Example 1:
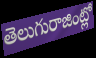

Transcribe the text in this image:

తెలుగురాజింట్లో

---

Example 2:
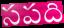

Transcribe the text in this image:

సపది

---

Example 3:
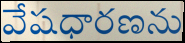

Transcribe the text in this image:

వేషధారణను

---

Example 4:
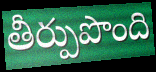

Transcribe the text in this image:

తీర్పుపొంది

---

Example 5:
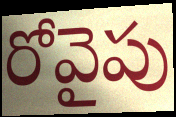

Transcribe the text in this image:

రోవైపు